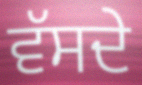
ਵੱਸਦੇ